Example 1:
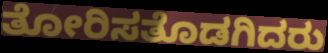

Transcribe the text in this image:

ತೋರಿಸತೊಡಗಿದರು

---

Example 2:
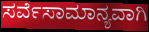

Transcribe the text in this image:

ಸರ್ವೆಸಾಮಾನ್ಯವಾಗಿ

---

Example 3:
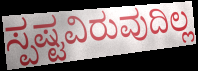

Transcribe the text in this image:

ಸ್ಪಷ್ಟವಿರುವುದಿಲ್ಲ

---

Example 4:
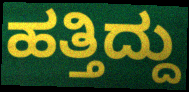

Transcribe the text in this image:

ಹತ್ತಿದ್ದು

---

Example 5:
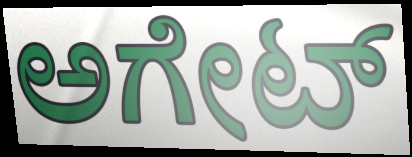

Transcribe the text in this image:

ಅಗೇಟ್